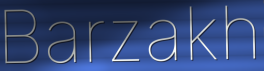
Barzakh